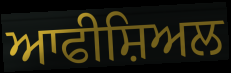
ਆਫੀਸ਼ਿਅਲ